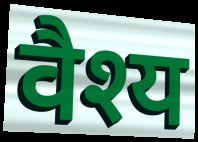
वैश्य